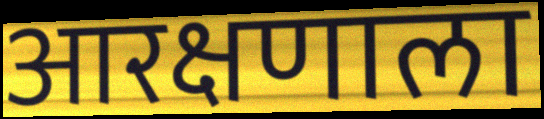
आरक्षणाला